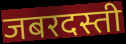
जबरदस्ती